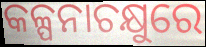
କଳ୍ପନାଚକ୍ଷୁରେ